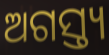
ଅଗସ୍ତ୍ୟ